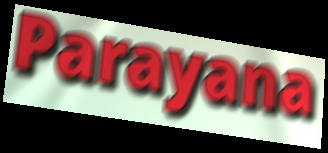
Parayana